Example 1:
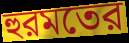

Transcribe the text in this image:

হুরমতের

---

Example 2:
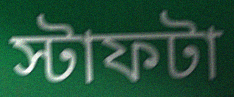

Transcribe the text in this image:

স্টাফটা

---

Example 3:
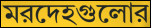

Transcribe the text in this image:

মরদেহগুলোর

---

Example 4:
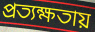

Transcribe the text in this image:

প্রত্যক্ষতায়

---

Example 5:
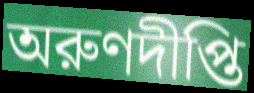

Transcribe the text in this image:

অরুণদীপ্তি